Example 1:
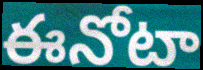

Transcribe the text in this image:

ఈనోటా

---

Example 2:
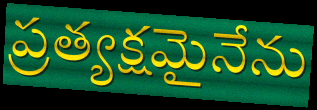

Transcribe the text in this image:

ప్రత్యక్షమైనేను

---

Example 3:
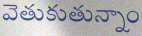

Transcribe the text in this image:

వెతుకుతున్నాం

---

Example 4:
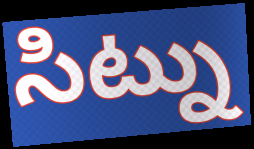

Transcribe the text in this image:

సిట్ను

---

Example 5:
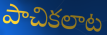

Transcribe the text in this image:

పాచికలాట